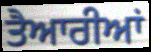
ਤੈਆਰੀਆਂ